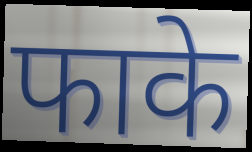
फाके